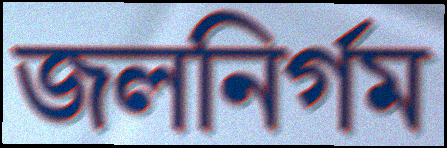
জলনির্গম